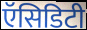
ऍसिडिटी